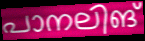
പാനലിങ്